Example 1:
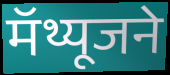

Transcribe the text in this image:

मॅथ्यूजने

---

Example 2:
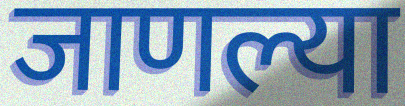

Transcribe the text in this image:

जाणल्या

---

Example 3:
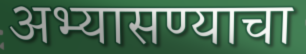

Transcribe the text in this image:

अभ्यासण्याचा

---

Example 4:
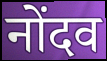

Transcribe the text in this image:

नोंदव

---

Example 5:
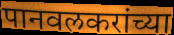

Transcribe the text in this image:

पानवलकरांच्या